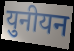
युनीयन